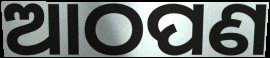
ଆଠପଣ